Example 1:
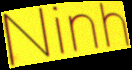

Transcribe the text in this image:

Ninh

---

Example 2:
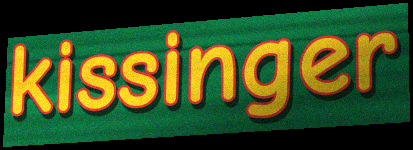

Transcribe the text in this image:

kissinger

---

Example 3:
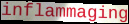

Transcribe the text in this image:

inflammaging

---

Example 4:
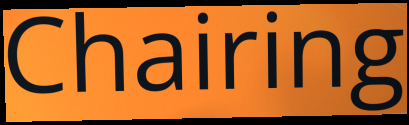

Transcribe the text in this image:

Chairing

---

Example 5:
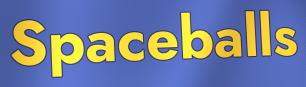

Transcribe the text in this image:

Spaceballs